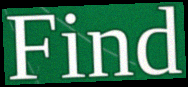
Find